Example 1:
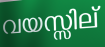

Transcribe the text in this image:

വയസ്സില്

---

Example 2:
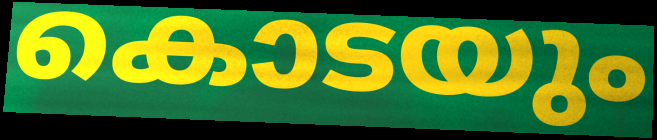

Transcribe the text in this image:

കൊടയും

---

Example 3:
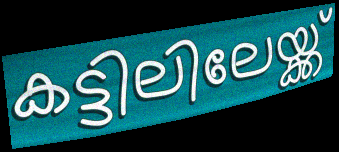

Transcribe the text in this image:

കട്ടിലിലേയ്ക്ക്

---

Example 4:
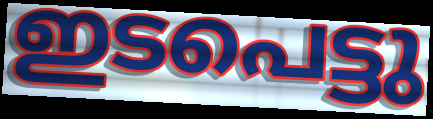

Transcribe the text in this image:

ഇടപെട്ടു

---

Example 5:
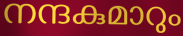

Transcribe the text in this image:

നന്ദകുമാറും